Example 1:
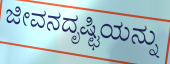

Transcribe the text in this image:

ಜೀವನದೃಷ್ಟಿಯನ್ನು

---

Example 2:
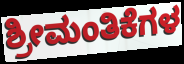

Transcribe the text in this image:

ಶ್ರೀಮಂತಿಕೆಗಳ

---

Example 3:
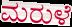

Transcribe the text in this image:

ಮರುಳೆ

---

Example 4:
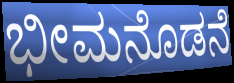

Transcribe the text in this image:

ಭೀಮನೊಡನೆ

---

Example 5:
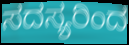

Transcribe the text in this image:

ಸದಸ್ಯರಿಂದ